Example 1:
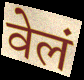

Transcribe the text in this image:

वेलं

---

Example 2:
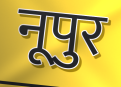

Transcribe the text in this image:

नूपुर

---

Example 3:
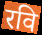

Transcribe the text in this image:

रवि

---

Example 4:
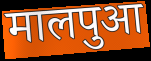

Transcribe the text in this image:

मालपुआ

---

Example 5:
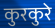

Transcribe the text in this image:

कुरकुरे